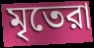
মৃতেরা